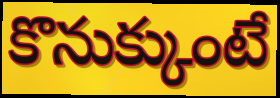
కొనుక్కుంటే